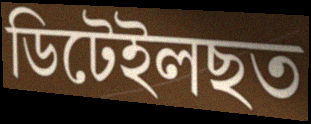
ডিটেইলছত